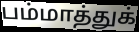
பம்மாத்துக்